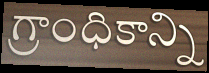
గ్రాంధికాన్ని